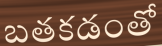
బతకడంతో